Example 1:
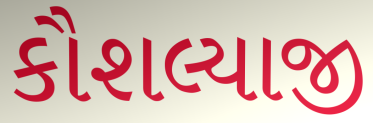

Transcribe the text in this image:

કૌશલ્યાજી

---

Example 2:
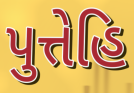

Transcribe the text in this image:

પુત્તેહિ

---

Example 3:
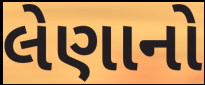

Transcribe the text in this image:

લેણાનો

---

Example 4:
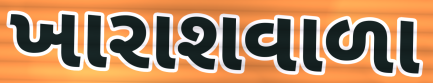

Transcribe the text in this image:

ખારાશવાળા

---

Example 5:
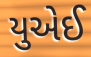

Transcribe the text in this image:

યુએઈ